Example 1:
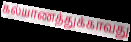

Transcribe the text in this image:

கல்யாணத்துக்காவது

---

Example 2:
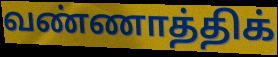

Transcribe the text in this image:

வண்ணாத்திக்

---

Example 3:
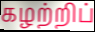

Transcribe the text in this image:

கழற்றிப்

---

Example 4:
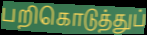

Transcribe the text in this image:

பறிகொடுத்துப்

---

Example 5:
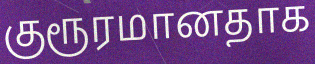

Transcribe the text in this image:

குரூரமானதாக